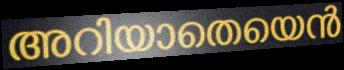
അറിയാതെയെൻ